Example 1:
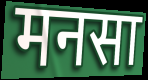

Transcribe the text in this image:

मनसा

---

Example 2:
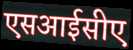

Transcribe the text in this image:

एसआईसीए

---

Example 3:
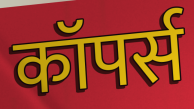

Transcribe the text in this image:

कॉपर्स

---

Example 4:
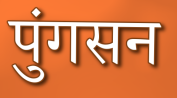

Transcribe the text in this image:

पुंगसन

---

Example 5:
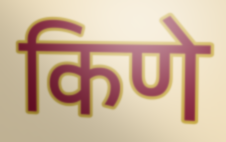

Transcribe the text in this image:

किणे